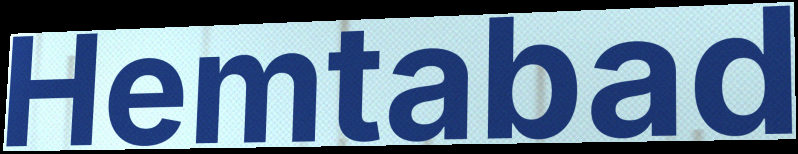
Hemtabad